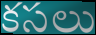
కసలు